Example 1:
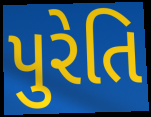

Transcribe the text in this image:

પુરેતિ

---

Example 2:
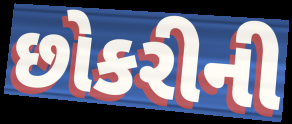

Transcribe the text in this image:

છોકરીની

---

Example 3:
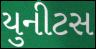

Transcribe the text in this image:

યુનીટસ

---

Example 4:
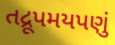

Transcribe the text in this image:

તદ્રૂપમયપણું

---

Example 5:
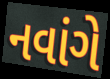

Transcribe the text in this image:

નવાંગે